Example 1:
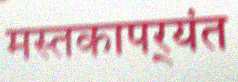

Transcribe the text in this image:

मस्तकापर्यंत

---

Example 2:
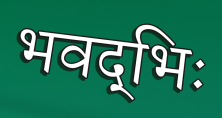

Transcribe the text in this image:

भवद्‌भिः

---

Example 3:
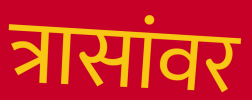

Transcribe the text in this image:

त्रासांवर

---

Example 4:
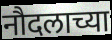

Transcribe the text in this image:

नौदलाच्या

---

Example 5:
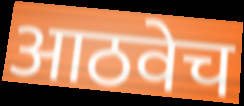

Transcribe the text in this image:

आठवेच